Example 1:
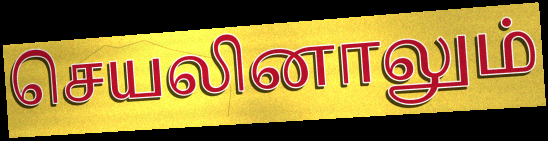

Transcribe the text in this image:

செயலினாலும்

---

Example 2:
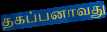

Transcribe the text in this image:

தகப்பனாவது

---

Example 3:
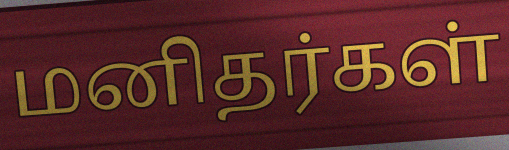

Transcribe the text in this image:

மனிதர்கள்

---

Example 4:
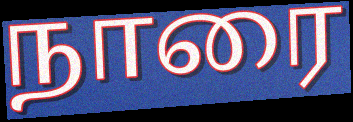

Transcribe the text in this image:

நாரை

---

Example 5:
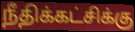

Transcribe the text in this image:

நீதிக்கட்சிக்கு